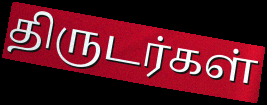
திருடர்கள்